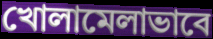
খোলামেলাভাবে